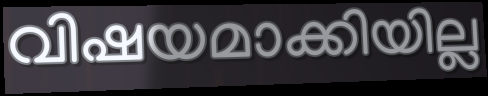
വിഷയമാക്കിയില്ല